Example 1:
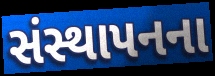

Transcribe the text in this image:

સંસ્થાપનના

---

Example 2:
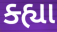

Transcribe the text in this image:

ક્હ્યા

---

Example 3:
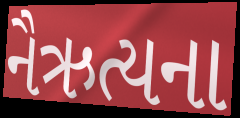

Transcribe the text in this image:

નૈઋત્યના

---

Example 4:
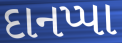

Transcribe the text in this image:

દાનપ્પા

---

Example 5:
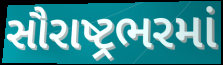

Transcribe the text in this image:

સૌરાષ્ટ્રભરમાં